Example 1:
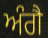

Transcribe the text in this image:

ਅੰਗੈ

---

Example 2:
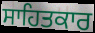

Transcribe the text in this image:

ਸਾਹਿਤਕਾਰ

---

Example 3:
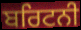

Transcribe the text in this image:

ਬਰਿਟਨੀ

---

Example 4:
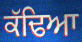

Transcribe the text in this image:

ਕੱਢਿਆ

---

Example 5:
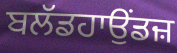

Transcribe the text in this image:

ਬਲੱਡਹਾਉਂਡਜ਼